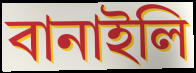
বানাইলি